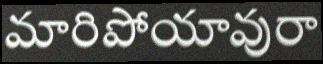
మారిపోయావురా